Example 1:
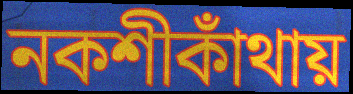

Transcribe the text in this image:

নকশীকাঁথায়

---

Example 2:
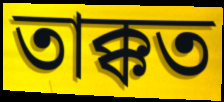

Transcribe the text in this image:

তাক্কত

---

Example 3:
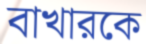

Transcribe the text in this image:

বাখারকে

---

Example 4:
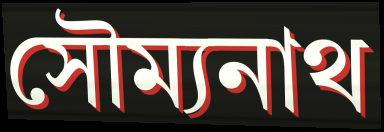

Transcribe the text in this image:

সৌম্যনাথ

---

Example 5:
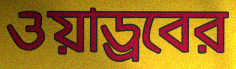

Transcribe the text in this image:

ওয়াড্রবের